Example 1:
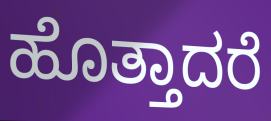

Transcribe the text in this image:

ಹೊತ್ತಾದರೆ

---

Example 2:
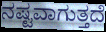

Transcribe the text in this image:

ನಷ್ಟವಾಗುತ್ತದೆ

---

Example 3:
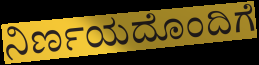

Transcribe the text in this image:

ನಿರ್ಣಯದೊಂದಿಗೆ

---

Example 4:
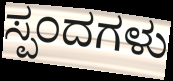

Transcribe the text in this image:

ಸ್ಪಂದಗಳು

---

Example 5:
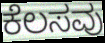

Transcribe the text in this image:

ಕೆಲಸವು